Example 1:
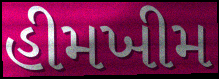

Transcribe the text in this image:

હીમખીમ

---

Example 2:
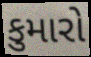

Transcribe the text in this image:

કુમારો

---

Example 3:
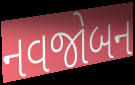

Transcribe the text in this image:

નવજોબન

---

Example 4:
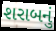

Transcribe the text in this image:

શરાબનું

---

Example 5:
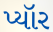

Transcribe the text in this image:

પ્યૉર